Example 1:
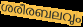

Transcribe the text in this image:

ശരീരബലവും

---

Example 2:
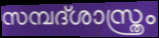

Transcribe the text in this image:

സമ്പദ്ശാസ്ത്രം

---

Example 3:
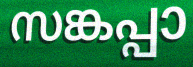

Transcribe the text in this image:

സങ്കപ്പാ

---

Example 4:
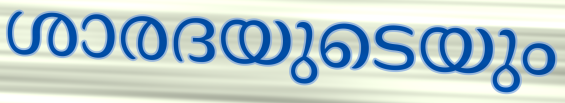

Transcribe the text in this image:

ശാരദയുടെയും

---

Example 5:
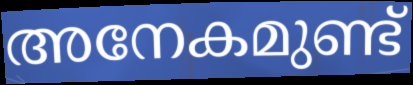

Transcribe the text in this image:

അനേകമുണ്ട്